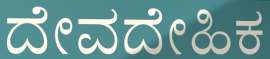
ದೇವದೇಹಿಕ